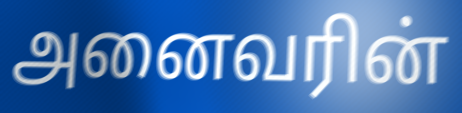
அனைவரின்